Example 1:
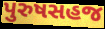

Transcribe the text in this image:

પુરુષસહજ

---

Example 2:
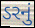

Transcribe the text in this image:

ડરનું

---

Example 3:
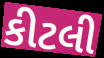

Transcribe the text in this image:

કીટલી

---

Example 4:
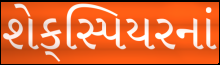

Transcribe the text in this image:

શેક્‌સ્પિયરનાં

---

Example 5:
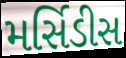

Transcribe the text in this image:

મર્સિડીસ